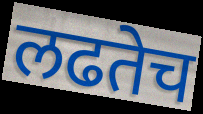
लढतेच